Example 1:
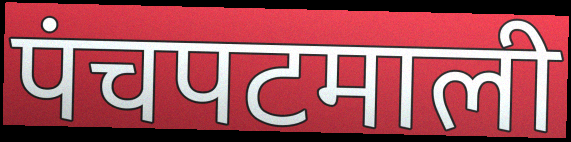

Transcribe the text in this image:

पंचपटमाली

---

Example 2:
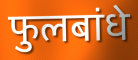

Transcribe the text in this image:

फुलबांधे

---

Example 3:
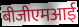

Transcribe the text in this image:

बीजीएमआई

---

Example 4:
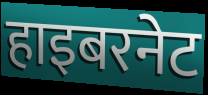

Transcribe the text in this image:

हाइबरनेट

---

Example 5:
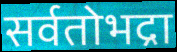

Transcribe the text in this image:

सर्वतोभद्रा